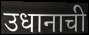
उधानाची